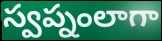
స్వప్నంలాగా